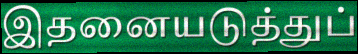
இதனையடுத்துப்